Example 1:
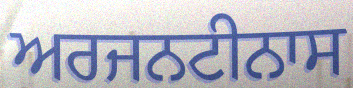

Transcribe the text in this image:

ਅਰਜਨਟੀਨਾਸ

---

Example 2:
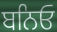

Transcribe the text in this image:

ਬਨਿਓ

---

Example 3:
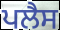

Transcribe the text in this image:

ਪਲੈਸ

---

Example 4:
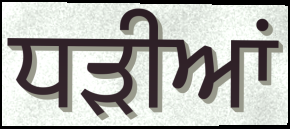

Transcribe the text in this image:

ਧੜੀਆਂ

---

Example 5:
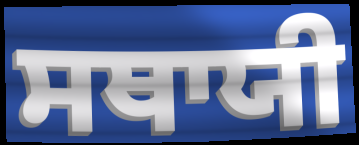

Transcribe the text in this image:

ਸਥਾਯੀ